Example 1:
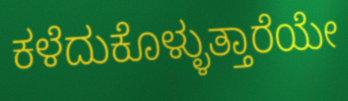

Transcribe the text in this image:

ಕಳೆದುಕೊಳ್ಳುತ್ತಾರೆಯೇ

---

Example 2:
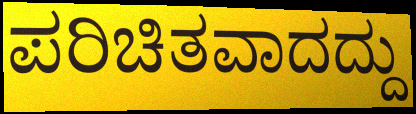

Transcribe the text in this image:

ಪರಿಚಿತವಾದದ್ದು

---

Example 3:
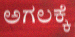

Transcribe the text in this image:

ಅಗಲಕ್ಕೆ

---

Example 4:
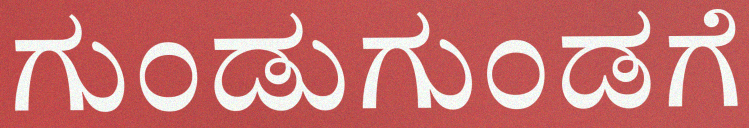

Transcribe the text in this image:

ಗುಂಡುಗುಂಡಗೆ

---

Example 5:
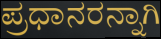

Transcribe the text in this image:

ಪ್ರಧಾನರನ್ನಾಗಿ